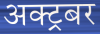
अक्ट्रबर